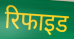
रिफाइड